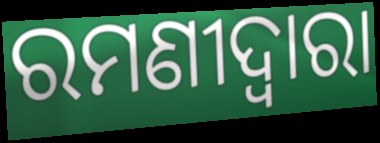
ରମଣୀଦ୍ୱାରା